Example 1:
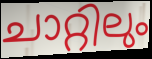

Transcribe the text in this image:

ചാറ്റിലും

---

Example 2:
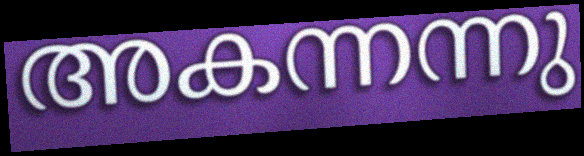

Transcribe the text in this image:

അകന്നന്നു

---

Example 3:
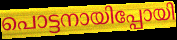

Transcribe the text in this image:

പൊട്ടനായിപ്പോയി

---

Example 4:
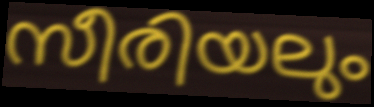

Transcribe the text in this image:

സീരിയലും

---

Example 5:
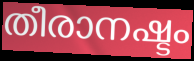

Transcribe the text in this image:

തീരാനഷ്ടം